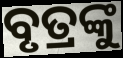
ବୃତ୍ରଙ୍କୁ